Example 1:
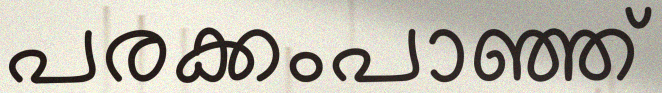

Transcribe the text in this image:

പരക്കംപാഞ്ഞ്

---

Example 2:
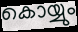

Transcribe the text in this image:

കൊയ്യും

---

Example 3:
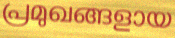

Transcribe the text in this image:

പ്രമുഖങ്ങളായ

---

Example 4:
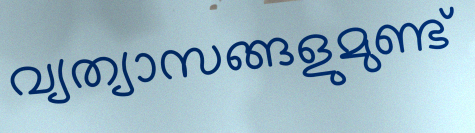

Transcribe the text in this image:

വ്യത്യാസങ്ങളുമുണ്ട്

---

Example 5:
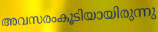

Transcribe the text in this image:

അവസരംകൂടിയായിരുന്നു